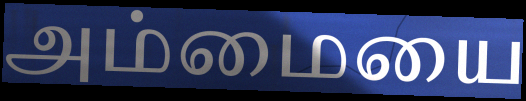
அம்மையை